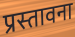
प्रस्तावना